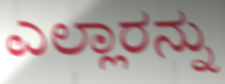
ಎಲ್ಲಾರನ್ನು